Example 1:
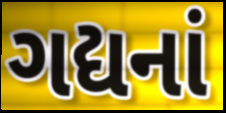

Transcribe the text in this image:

ગદ્યનાં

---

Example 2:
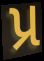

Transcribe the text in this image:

પ્ર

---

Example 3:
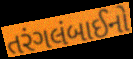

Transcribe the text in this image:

તરંગલંબાઈનો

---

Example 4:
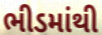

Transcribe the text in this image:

ભીડમાંથી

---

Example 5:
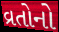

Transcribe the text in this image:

વ્રતોનો